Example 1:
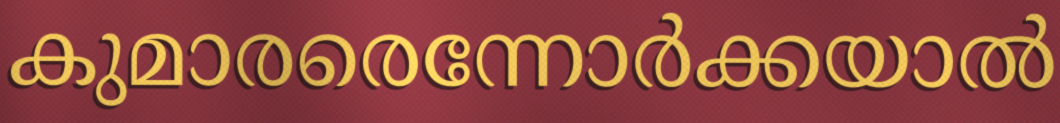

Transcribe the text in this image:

കുമാരരെന്നോർക്കയാൽ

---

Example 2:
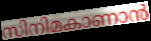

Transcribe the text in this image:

സിനിമകാണാൻ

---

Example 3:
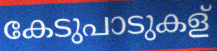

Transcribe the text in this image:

കേടുപാടുകള്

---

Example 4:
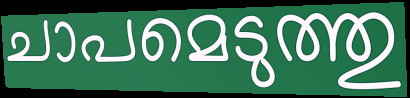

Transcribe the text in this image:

ചാപമെടുത്തു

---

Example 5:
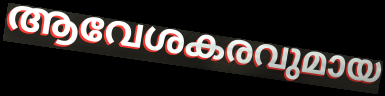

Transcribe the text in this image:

ആവേശകരവുമായ